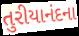
તુરીયાનંદના